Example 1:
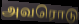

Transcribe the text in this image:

அவரொடு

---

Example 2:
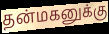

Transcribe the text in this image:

தன்மகனுக்கு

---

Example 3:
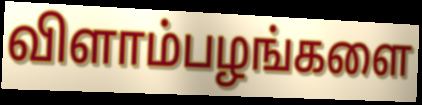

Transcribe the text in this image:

விளாம்பழங்களை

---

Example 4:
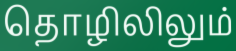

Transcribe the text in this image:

தொழிலிலும்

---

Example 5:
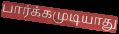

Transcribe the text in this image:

பார்க்கமுடியாது